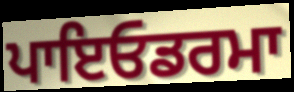
ਪਾਇਓਡਰਮਾ